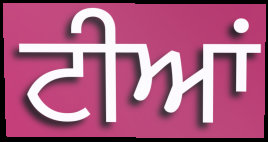
ਟੀਆਂ